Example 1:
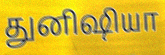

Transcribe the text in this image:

துனிஷியா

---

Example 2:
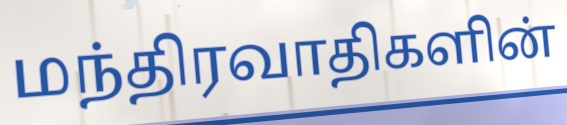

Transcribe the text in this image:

மந்திரவாதிகளின்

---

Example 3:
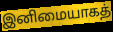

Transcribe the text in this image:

இனிமையாகத்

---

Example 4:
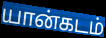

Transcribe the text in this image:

யான்கடம்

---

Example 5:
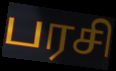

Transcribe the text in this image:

பரசி